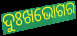
ଦୁଃଖଭୋଗର